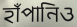
হাঁপানিও